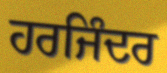
ਹਰਜਿੰਦਰ